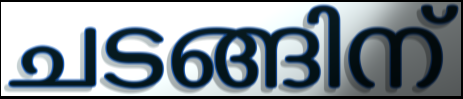
ചടങ്ങിന്